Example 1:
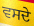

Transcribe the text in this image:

ਵਸਦੇ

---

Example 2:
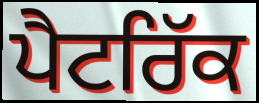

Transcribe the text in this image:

ਪੈਟਰਿੱਕ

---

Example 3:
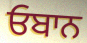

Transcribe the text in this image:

ਓਬਾਨ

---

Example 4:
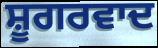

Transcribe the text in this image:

ਸ਼ੂਗਰਵਾਦ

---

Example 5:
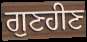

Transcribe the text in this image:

ਗੁਣਹੀਣ